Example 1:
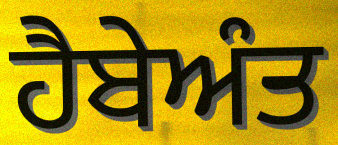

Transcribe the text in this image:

ਹੈਬੇਅੰਤ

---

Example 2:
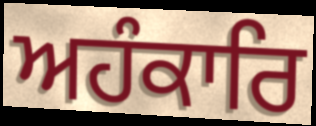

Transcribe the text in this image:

ਅਹੰਕਾਰਿ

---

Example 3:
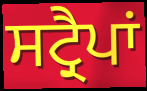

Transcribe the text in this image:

ਸਟ੍ਰੈਪਾਂ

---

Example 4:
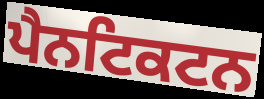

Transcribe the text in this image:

ਪੈਨਟਿਕਟਨ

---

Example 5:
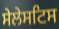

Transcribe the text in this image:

ਸੇਲੇਸਟਿਸ